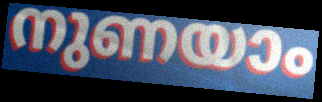
നുണയാം